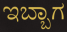
ಇಬ್ಬಾಗ